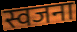
स्वजना